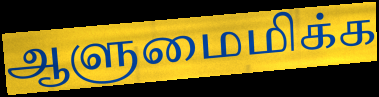
ஆளுமைமிக்க